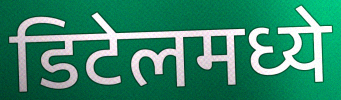
डिटेलमध्ये